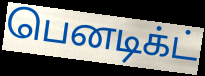
பெனடிக்ட்